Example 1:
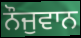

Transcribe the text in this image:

ਨੌਜੁਵਾਨ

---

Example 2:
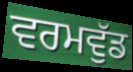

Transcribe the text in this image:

ਵਰਮਵੁੱਡ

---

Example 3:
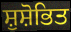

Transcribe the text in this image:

ਸ਼ੁਸ਼ੋਭਿਤ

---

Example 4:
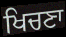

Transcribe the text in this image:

ਖਿਚਣਾ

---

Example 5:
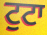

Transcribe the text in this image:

ਟੁਟਾ